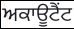
ਅਕਾਊਟੈਂਟ